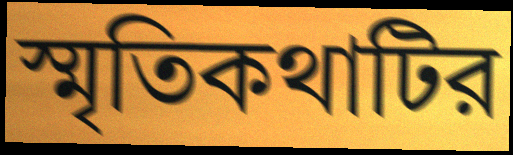
স্মৃতিকথাটির